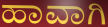
ಹಾವಾಗಿ